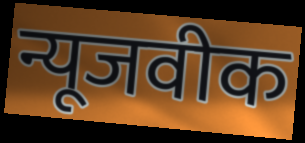
न्यूजवीक